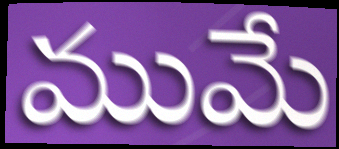
ముమే